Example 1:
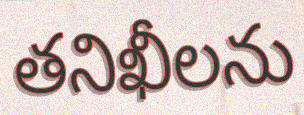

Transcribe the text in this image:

తనిఖీలను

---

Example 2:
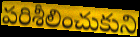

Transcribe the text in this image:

పరిశీలించుకుని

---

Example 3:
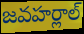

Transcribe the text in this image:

జవహర్లాల్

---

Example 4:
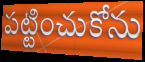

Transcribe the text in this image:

పట్టించుకోను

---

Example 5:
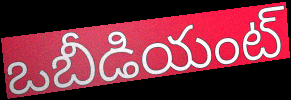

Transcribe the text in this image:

ఒబీడియంట్